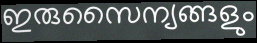
ഇരുസൈന്യങ്ങളും